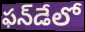
ఫన్‌డేలో